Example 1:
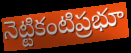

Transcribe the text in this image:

నెట్టికంటిప్రభూ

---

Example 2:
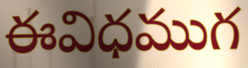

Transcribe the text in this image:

ఈవిధముగ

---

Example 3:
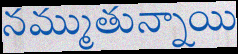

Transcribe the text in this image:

నమ్ముతున్నాయి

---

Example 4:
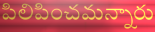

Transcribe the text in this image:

పిలిపించమన్నారు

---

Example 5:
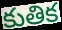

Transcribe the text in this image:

కుతిక